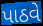
પાઠવે